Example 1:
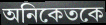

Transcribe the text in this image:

অনিকেতকে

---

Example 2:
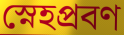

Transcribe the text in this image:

স্নেহপ্রবণ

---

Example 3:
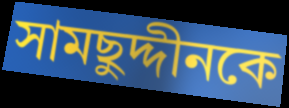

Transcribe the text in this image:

সামছুদ্দীনকে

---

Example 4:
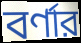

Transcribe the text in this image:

বর্ণার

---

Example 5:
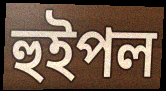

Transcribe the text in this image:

হুইপল